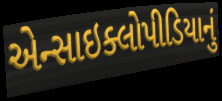
એન્સાઇક્લોપીડિયાનું